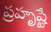
ప్రహృష్టే